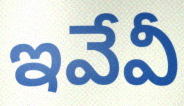
ఇవేవీ